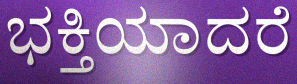
ಭಕ್ತಿಯಾದರೆ